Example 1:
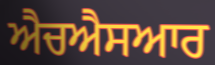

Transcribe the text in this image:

ਐਚਐਸਆਰ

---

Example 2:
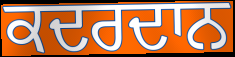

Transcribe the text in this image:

ਕਦਰਦਾਨ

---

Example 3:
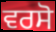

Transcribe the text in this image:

ਵਰਸੋ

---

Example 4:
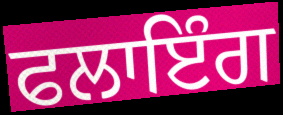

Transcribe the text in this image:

ਫਲਾਇੰਗ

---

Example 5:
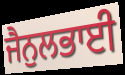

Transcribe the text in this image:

ਜੈਨੁਲਭਾਈ